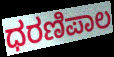
ಧರಣಿಪಾಲ